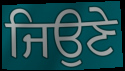
ਜਿਉਣੇ